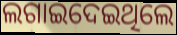
ଲଗାଇଦେଇଥିଲେ